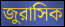
জুরাসিক